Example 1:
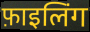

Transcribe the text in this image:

फ़ाइलिंग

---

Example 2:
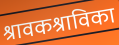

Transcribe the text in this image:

श्रावकश्राविका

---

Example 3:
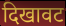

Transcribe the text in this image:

दिखावट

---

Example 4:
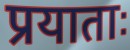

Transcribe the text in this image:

प्रयाताः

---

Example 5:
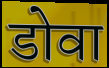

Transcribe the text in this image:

डोवा